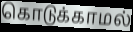
கொடுக்காமல்